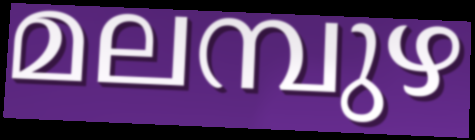
മലമ്പുഴ